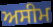
ਅਸੀਮ